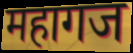
महागज